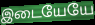
இடையேயே